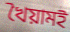
খৈয়ামই